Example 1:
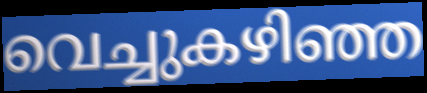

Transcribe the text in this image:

വെച്ചുകഴിഞ്ഞ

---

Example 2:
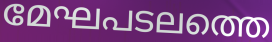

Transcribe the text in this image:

മേഘപടലത്തെ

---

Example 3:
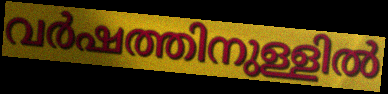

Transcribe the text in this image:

വർഷത്തിനുള്ളിൽ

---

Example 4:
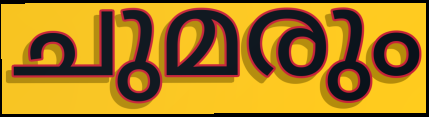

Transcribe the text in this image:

ചുമരും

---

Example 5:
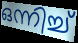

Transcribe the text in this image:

ഒന്നിച്ച്